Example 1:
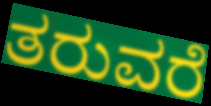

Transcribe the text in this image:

ತರುವರೆ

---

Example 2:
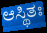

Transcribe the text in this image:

ಆಸ್ಥಿತಃ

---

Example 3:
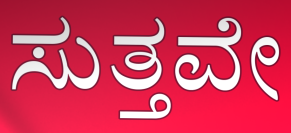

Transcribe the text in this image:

ಸುತ್ತವೇ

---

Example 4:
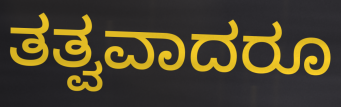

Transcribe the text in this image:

ತತ್ವವಾದರೂ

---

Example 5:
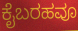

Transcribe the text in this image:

ಕೈಬರಹವೂ